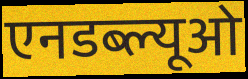
एनडब्ल्यूओ